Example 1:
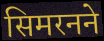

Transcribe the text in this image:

सिमरनने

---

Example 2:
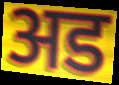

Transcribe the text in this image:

अड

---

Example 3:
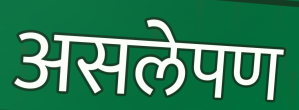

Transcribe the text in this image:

असलेपण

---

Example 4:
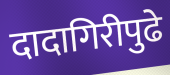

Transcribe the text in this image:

दादागिरीपुढे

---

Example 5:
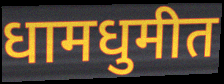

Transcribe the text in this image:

धामधुमीत